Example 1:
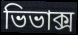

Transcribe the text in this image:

ভিভাক্স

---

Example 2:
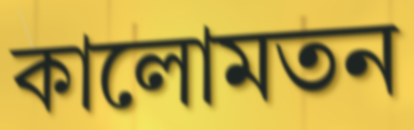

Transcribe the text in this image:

কালোমতন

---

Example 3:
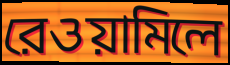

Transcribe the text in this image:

রেওয়ামিলে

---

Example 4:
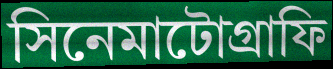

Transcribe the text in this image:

সিনেমাটোগ্রাফি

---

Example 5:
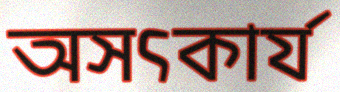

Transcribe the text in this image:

অসৎকার্য